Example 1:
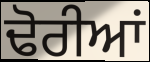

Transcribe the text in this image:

ਢੋਰੀਆਂ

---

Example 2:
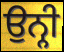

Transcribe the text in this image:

ਉਨ੍ਨੀ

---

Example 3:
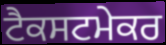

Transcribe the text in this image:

ਟੈਕਸਟਮੇਕਰ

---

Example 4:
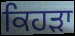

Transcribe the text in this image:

ਕਿਹੜਾ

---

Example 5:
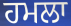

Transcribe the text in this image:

ਹਮਲਾ